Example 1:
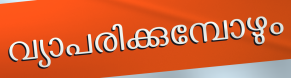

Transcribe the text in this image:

വ്യാപരിക്കുമ്പോഴും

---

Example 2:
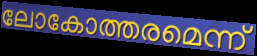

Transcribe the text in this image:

ലോകോത്തരമെന്ന്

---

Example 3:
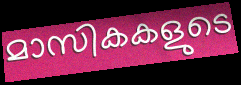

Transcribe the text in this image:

മാസികകളുടെ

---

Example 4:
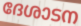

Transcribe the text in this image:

ദേശാടന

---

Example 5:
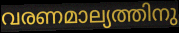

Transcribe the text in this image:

വരണമാല്യത്തിനു